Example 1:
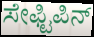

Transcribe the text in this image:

ಸೇಫ್ಟಿಪಿನ್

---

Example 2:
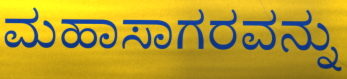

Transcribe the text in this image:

ಮಹಾಸಾಗರವನ್ನು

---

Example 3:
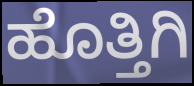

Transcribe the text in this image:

ಹೊತ್ತಿಗಿ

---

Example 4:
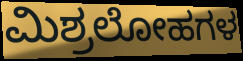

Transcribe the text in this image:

ಮಿಶ್ರಲೋಹಗಳ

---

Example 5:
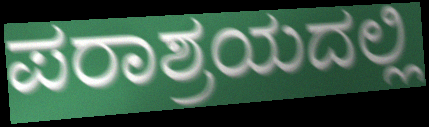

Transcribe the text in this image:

ಪರಾಶ್ರಯದಲ್ಲಿ